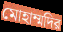
মোহাম্মদির